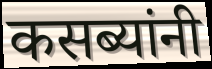
कसब्यांनी